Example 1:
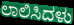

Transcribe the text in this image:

ಲಾಲಿಸಿದಳು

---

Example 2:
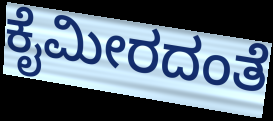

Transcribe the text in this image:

ಕೈಮೀರದಂತೆ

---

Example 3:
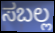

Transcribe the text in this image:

ಸಬಲ್ಲ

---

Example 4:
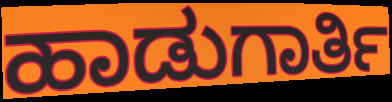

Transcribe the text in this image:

ಹಾಡುಗಾರ್ತಿ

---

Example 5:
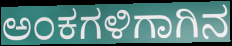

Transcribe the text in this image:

ಅಂಕಗಳಿಗಾಗಿನ